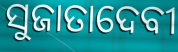
ସୁଜାତାଦେବୀ